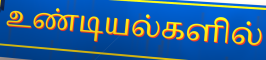
உண்டியல்களில்